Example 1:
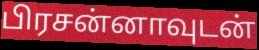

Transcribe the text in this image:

பிரசன்னாவுடன்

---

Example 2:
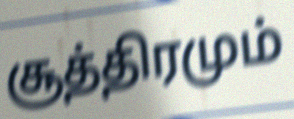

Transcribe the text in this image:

சூத்திரமும்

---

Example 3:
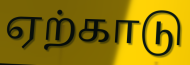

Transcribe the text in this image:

ஏற்காடு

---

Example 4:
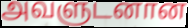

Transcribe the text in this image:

அவளுடனான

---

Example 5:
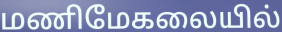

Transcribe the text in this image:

மணிமேகலையில்